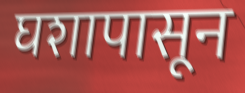
घशापासून